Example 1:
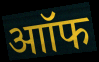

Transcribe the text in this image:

आॉफ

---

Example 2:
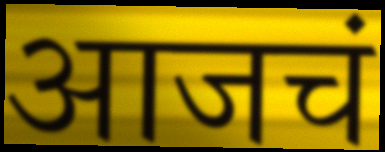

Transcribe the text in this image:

आजचं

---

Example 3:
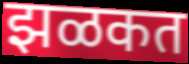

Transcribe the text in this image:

झळकत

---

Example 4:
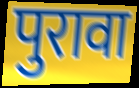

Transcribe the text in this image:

पुरावा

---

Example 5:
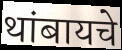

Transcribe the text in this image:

थांबायचे